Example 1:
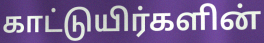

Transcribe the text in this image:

காட்டுயிர்களின்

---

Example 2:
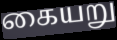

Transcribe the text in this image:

கையறு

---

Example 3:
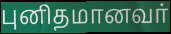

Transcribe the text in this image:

புனிதமானவர்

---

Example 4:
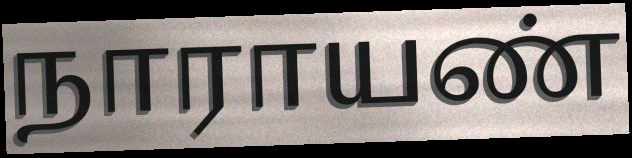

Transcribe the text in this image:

நாராயண்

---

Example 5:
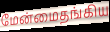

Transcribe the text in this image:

மேன்மைதங்கிய